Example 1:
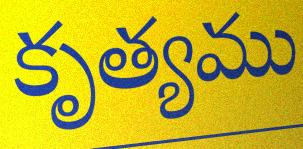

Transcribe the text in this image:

కృత్యము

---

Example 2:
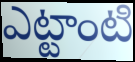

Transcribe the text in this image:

ఎట్టాంటి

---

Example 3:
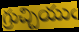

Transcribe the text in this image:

గ్రుచ్చియుఁ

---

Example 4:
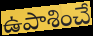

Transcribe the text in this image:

ఉపాశించే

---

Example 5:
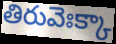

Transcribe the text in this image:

తిరువెఃక్కా